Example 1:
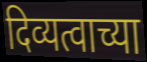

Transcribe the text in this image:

दिव्यत्वाच्या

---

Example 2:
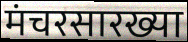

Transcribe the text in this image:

मंचरसारख्या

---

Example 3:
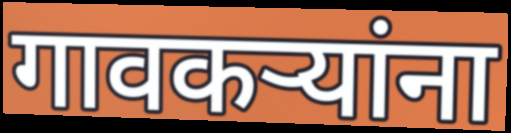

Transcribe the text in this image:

गावकऱ्यांना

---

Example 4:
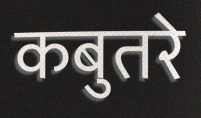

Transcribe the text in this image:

कबुतरे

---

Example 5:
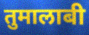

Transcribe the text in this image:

तुमालाबी